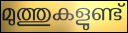
മുത്തുകളുണ്ട്